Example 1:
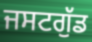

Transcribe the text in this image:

ਜਸਟਗੁੱਡ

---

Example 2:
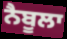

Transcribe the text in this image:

ਨੈਬੂਲਾ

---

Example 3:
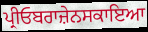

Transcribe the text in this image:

ਪ੍ਰੀਓਬਰਾਜ਼ੇਨਸਕਾਇਆ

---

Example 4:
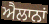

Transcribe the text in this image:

ਐਲਾਨਾਂ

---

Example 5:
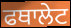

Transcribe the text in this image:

ਫਥਾਲੇਟ